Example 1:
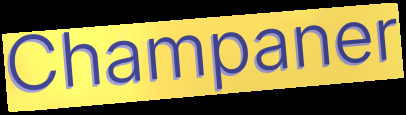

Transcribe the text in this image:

Champaner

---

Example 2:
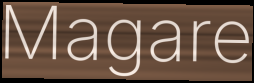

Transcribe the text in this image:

Magare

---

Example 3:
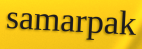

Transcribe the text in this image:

samarpak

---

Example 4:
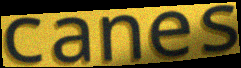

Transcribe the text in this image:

canes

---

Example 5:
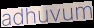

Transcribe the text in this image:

adhuvum